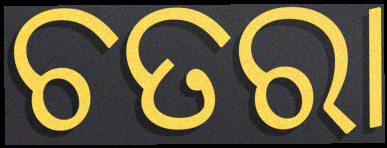
ଚତରା